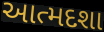
આત્મદશા